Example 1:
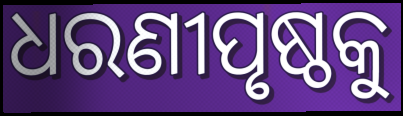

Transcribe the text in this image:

ଧରଣୀପୃଷ୍ଠକୁ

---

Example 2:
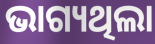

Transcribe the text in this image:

ଭାଗ୍ୟଥିଲା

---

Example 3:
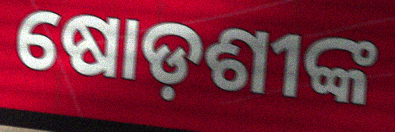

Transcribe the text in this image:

ଷୋଡ଼ଶୀଙ୍କ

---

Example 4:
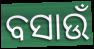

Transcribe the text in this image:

ବସାଉଁ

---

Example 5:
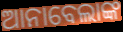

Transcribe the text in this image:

ଆନାବେଲାଙ୍କ